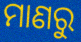
ମାଣରୁ